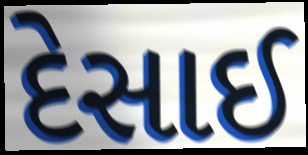
દેસાઈ